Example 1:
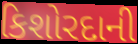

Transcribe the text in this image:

કિશોરદાની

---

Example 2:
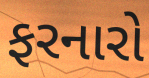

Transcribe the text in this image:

ફરનારો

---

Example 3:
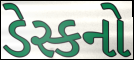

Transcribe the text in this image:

ડેસ્કનો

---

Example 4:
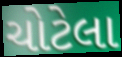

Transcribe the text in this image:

ચોટેલા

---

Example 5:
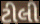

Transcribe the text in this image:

ટીલી